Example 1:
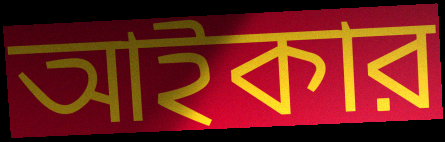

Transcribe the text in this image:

আইকার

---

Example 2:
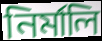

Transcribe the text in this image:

নির্মালি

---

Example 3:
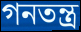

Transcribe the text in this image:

গনতন্ত্র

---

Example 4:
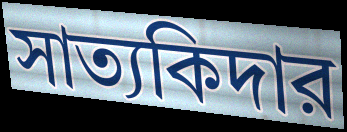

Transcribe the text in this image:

সাত্যকিদার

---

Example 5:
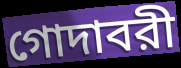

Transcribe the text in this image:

গোদাবরী